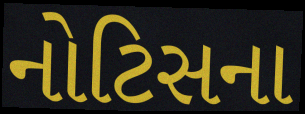
નોટિસના